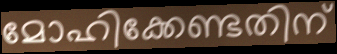
മോഹിക്കേണ്ടതിന്